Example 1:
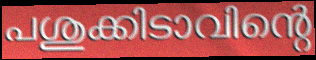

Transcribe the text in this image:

പശുക്കിടാവിന്റെ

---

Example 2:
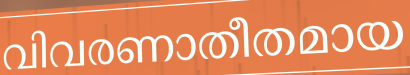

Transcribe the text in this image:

വിവരണാതീതമായ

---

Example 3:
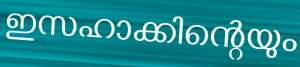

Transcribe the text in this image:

ഇസഹാക്കിന്റെയും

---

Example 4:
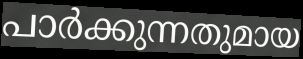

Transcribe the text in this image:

പാർക്കുന്നതുമായ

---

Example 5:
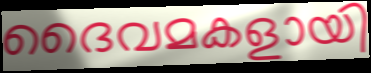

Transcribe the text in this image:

ദൈവമകളായി